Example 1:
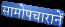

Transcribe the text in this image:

सामोपचारानें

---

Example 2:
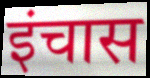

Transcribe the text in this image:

इंचास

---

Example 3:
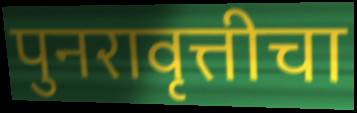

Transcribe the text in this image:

पुनरावृत्तीचा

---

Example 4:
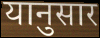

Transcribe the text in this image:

यानुसार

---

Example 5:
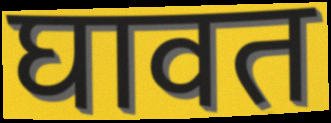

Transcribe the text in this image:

घावत